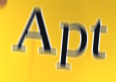
Apt